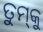
ତୁମ୍‌କୁ